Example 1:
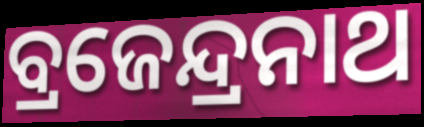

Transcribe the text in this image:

ବ୍ରଜେନ୍ଦ୍ରନାଥ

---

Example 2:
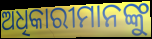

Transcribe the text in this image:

ଅଧିକାରୀମାନଙ୍କୁ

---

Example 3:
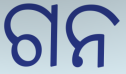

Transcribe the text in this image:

ଗନ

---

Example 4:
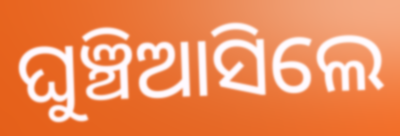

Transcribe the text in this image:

ଘୁଞ୍ଚିଆସିଲେ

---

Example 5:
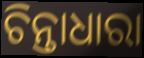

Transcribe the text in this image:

ଚିନ୍ତାଧାରା